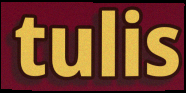
tulis